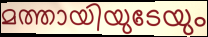
മത്തായിയുടേയും